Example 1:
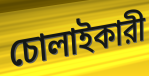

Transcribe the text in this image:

চোলাইকারী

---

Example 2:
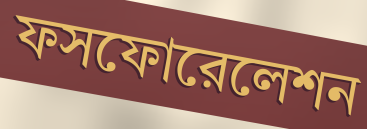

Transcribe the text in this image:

ফসফোরেলেশন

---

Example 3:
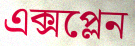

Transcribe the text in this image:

এক্সপ্লেন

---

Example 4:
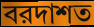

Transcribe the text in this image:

বরদাশত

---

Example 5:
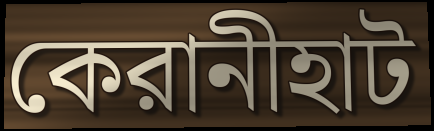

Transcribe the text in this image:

কেরানীহাট